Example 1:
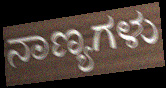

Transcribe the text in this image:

ನಾಣ್ಯಗಳು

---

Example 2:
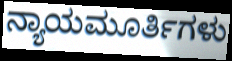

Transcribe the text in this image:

ನ್ಯಾಯಮೂರ್ತಿಗಳು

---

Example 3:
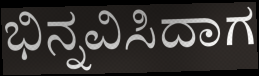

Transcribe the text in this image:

ಭಿನ್ನವಿಸಿದಾಗ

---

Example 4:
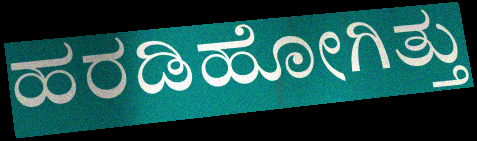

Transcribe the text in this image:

ಹರಡಿಹೋಗಿತ್ತು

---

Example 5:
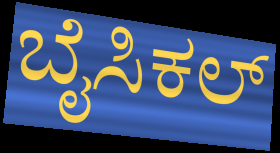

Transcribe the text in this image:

ಬೈಸಿಕಲ್